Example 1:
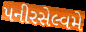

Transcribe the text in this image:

પનીરસેલ્વમે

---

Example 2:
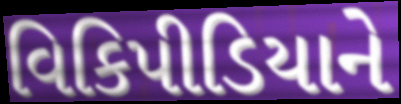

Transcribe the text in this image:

વિકિપીડિયાને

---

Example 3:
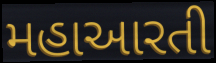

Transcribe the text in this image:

મહાઆરતી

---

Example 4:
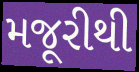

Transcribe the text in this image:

મજૂરીથી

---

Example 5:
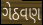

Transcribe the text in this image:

ગેઠવણ